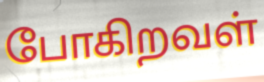
போகிறவள்